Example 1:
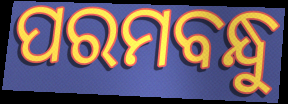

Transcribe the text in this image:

ପରମବନ୍ଧୁ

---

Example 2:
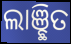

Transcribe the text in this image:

ଲାଞ୍ଛିତ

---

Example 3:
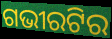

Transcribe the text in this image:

ଗଭୀରଟିର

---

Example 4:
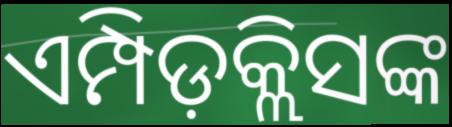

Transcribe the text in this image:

ଏମ୍ପିଡ଼କ୍ଲିସଙ୍କ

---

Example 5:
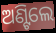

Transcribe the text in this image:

ଅଣ୍ଟିଲେ